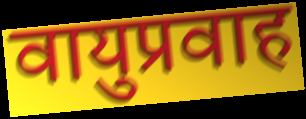
वायुप्रवाह